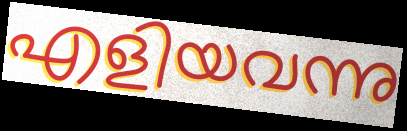
എളിയവന്നു